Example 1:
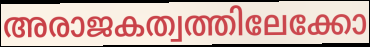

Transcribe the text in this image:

അരാജകത്വത്തിലേക്കോ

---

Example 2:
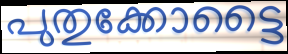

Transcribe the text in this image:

പുതുക്കോട്ടൈ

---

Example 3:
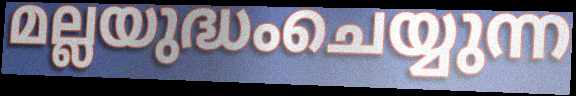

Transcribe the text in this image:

മല്ലയുദ്ധംചെയ്യുന്ന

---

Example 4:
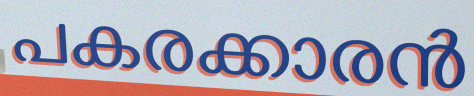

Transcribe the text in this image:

പകരക്കാരൻ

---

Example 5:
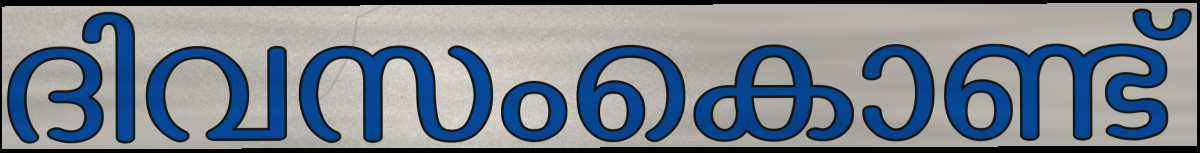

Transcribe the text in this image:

ദിവസംകൊണ്ട്